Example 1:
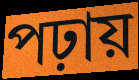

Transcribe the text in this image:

পঢ়ায়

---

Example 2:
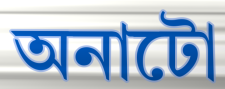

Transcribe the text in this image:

অনাটো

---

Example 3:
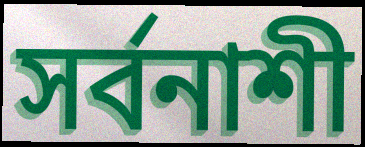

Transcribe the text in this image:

সৰ্বনাশী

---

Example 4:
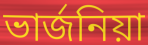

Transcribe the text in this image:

ভাৰ্জনিয়া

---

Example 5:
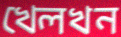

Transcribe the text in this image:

খেলখন